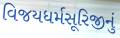
વિજયધર્મસૂરિજીનું